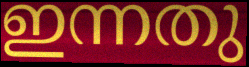
ഇന്നതു